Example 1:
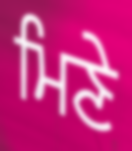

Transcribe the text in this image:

ਮਿਣੇ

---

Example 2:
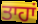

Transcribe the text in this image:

ਤਾਹਾਂ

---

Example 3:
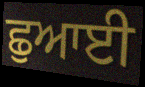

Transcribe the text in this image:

ਛੁਆਈ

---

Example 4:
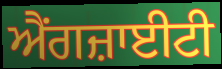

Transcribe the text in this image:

ਐਂਗਜ਼ਾਈਟੀ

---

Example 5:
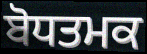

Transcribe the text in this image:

ਬੋਧਤਮਕ